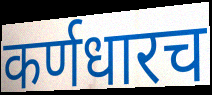
कर्णधारच